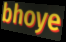
bhoye